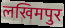
लखिमपुर